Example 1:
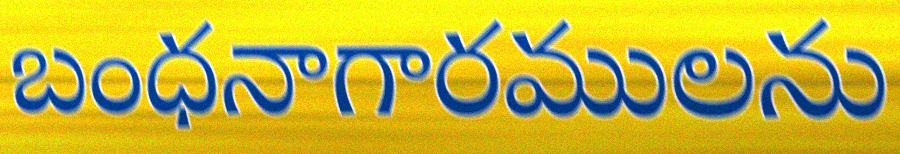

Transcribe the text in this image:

బంధనాగారములను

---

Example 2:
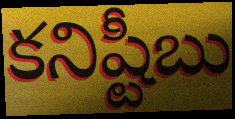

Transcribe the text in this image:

కనిష్టీబు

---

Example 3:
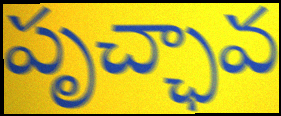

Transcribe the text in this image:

పృచ్ఛావ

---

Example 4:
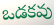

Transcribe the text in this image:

ఒడకవు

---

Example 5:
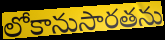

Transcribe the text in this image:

లోకానుసారతను